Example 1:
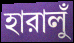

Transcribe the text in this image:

হারালুঁ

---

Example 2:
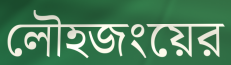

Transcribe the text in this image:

লৌহজংয়ের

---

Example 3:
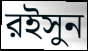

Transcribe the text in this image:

রইসুন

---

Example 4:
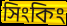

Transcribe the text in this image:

সিংকিং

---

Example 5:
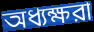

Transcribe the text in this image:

অধ্যক্ষরা